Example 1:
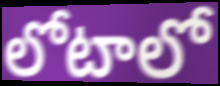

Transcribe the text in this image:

లోటాలో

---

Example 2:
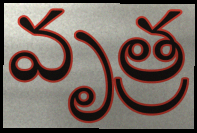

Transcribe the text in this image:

వృత్ర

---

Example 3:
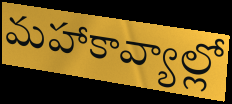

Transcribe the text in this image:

మహాకావ్యాల్లో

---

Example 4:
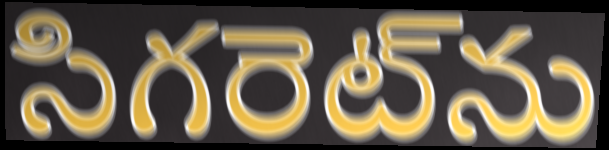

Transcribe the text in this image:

సిగరెట్‌ను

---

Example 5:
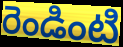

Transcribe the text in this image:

రెండింటి